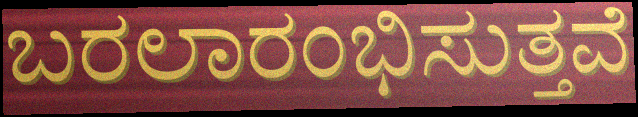
ಬರಲಾರಂಭಿಸುತ್ತವೆ